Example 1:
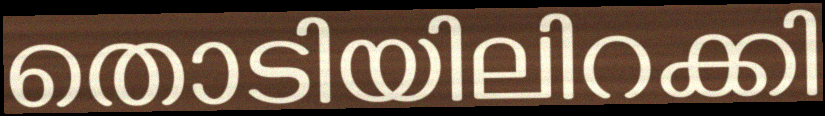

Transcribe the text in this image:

തൊടിയിലിറക്കി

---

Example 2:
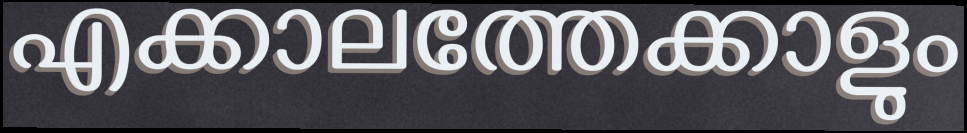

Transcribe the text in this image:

എക്കാലത്തേക്കാളും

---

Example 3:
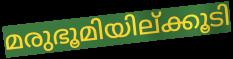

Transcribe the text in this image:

മരുഭൂമിയില്ക്കൂടി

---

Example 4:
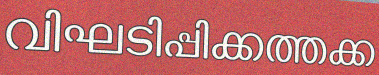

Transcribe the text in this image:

വിഘടിപ്പിക്കത്തക്ക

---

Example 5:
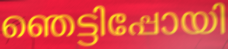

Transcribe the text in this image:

ഞെട്ടിപ്പോയി